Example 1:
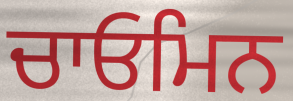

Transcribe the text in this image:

ਚਾਓਮਿਨ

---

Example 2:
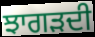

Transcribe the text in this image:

ਝਾਗੜਦੀ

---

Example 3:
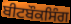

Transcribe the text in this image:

ਬੀਟਬੌਕਸਿੰਗ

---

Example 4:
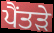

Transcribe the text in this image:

ਪੈਂਤੜੇ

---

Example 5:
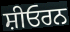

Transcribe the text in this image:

ਸ਼ੀਓਰਨ